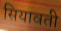
सियावती